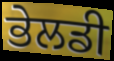
ਭੇਲਡੀ